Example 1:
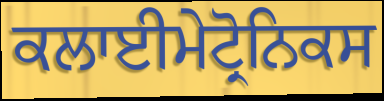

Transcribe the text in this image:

ਕਲਾਈਮੇਟ੍ਰੋਨਿਕਸ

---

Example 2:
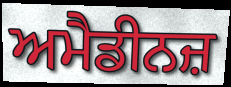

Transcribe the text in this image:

ਅਮੈਡੀਨਜ਼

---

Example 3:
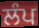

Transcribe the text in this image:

ਲੰਪ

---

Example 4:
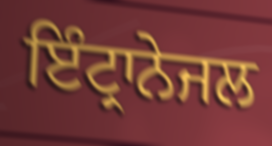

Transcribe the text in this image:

ਇੰਟ੍ਰਾਨੇਜਲ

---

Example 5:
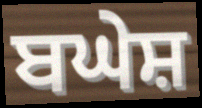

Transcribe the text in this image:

ਬਘੇਸ਼